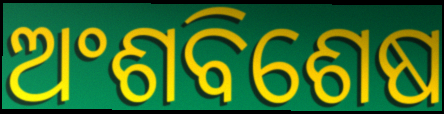
ଅଂଶବିଶେଷ